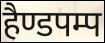
हैण्डपम्प